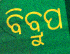
ବିବ୍ରୁପ